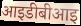
आइडीबीआइ